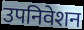
उपनिवेशन